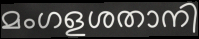
മംഗളശതാനി